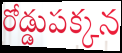
రోడ్డుపక్కన